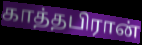
காத்தபிரான்